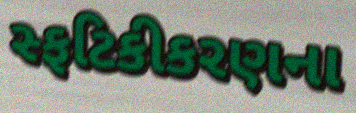
સ્ફટિકીકરણના